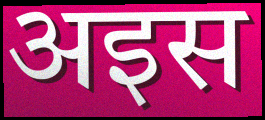
अइस